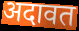
अदावत